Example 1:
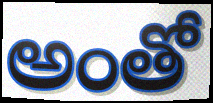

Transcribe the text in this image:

అంతో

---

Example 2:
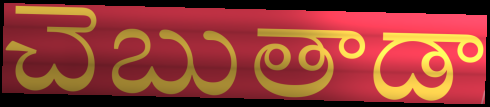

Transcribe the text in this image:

చెబుతాడా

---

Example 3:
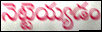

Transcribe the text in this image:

నెట్టెయ్యడం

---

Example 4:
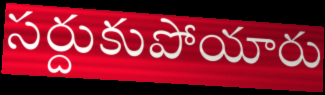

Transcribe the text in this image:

సర్దుకుపోయారు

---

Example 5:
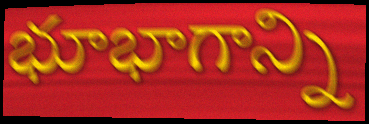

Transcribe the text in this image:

భూభాగాన్ని